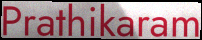
Prathikaram